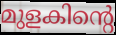
മുളകിന്റെ